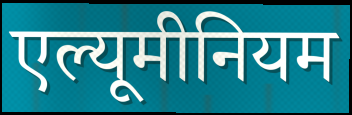
एल्‍यूमीनियम